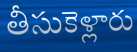
తీసుకెళ్లారు